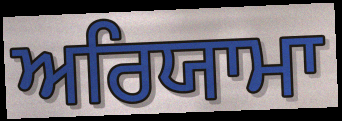
ਅਰਿਯਾਮਾ